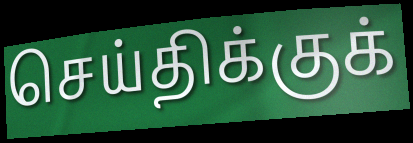
செய்திக்குக்